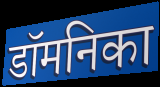
डॉमनिका